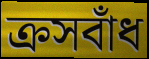
ক্রসবাঁধ